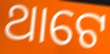
ଥାଟେ